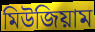
মিউজিয়াম